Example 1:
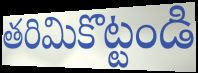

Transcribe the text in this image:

తరిమికొట్టండి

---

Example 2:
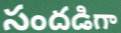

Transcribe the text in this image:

సందడిగా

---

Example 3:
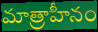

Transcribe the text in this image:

మాత్రాహీనం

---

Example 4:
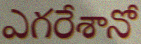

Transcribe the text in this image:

ఎగరేశానో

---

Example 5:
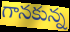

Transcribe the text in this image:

గానకున్న